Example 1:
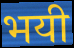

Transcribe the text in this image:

भयी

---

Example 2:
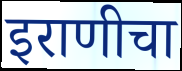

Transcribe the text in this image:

इराणीचा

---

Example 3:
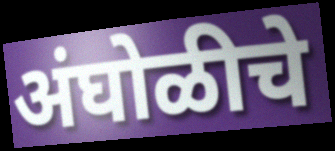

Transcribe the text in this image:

अंघोळीचे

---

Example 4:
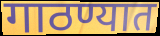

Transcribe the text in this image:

गाठण्यात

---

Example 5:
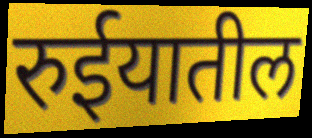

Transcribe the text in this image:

रुईयातील